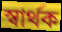
স্বাৰ্থক